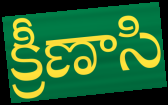
క్రీణాసి